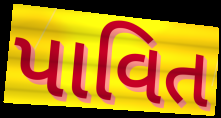
પાવિત